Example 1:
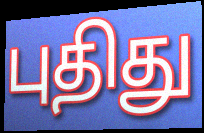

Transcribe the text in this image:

புதிது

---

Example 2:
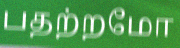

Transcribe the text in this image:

பதற்றமோ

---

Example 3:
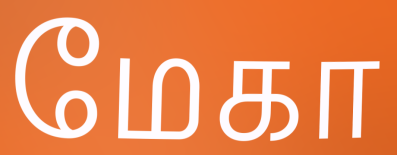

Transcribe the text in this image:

மேகா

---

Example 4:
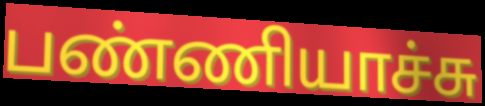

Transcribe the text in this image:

பண்ணியாச்சு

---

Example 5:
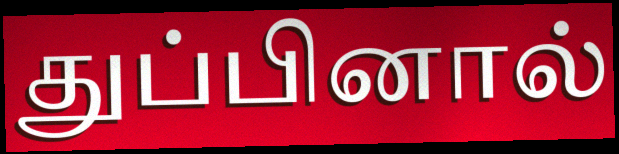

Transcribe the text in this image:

துப்பினால்